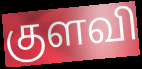
குளவி